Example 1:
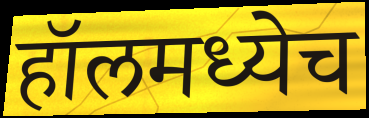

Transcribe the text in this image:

हॉलमध्येच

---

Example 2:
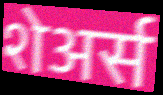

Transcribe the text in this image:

शेअर्स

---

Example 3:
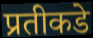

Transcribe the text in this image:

प्रतीकडे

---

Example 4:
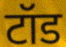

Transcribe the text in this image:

टॉड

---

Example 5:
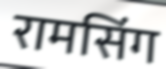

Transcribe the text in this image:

रामसिंग